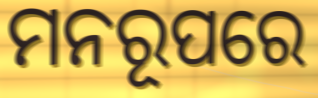
ମନରୂପରେ